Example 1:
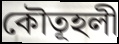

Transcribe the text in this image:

কৌতূহলী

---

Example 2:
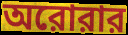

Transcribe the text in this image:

অরোরার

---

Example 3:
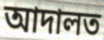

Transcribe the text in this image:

আদালত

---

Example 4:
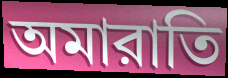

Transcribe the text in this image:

অমারাতি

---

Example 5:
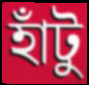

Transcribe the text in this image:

হাঁটু